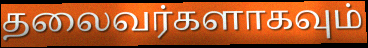
தலைவர்களாகவும்